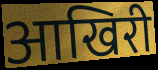
आखिरी